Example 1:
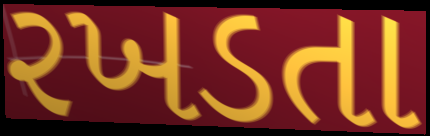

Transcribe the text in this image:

રખડતા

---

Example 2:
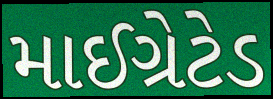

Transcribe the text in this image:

માઈગ્રેટેડ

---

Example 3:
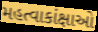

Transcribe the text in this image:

મહત્વાકાંક્ષાઓ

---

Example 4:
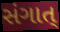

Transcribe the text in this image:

સંગાત્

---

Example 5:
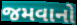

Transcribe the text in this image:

જમવાનો